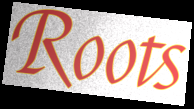
Roots